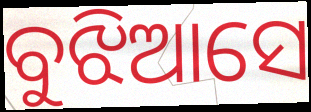
ବୁଝିଆସେ